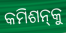
କମିଶନ୍‌କୁ